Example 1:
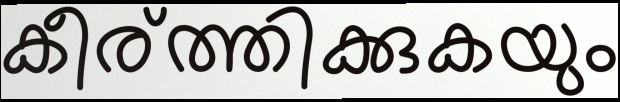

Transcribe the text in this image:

കീര്ത്തിക്കുകയും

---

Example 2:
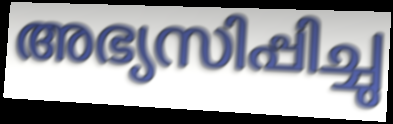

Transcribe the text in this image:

അഭ്യസിപ്പിച്ചു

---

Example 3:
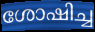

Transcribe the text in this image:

ശോഷിച്ച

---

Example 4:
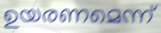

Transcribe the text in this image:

ഉയരണമെന്ന്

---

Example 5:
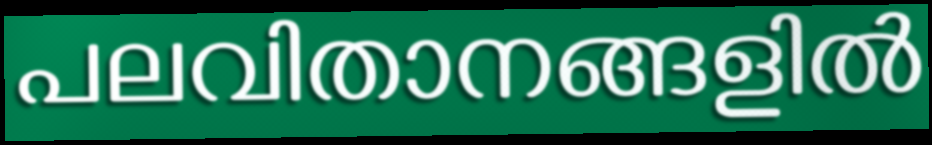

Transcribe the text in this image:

പലവിതാനങ്ങളിൽ